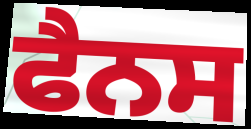
ਫੈਨਸ